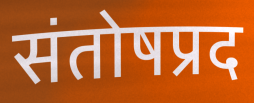
संतोषप्रद